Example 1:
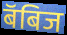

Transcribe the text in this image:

बॅबिज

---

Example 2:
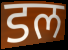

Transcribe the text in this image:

डल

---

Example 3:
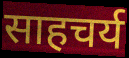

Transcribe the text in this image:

साहचर्य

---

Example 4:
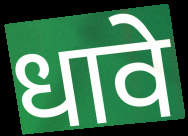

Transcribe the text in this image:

धावे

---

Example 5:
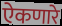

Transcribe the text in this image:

ऐकणारे